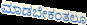
ಮಾಡಬೇಕಂತಲೂ